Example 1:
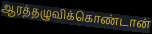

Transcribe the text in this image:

ஆரத்தழுவிக்கொண்டான்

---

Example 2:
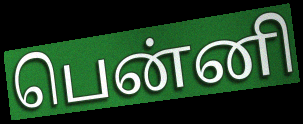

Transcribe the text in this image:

பென்னி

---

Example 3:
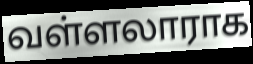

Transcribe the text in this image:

வள்ளலாராக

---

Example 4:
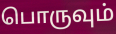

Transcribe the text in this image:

பொருவும்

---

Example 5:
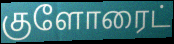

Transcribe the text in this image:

குளோரைட்